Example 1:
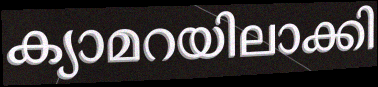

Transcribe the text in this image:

ക്യാമറയിലാക്കി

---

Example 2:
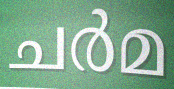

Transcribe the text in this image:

ചർമ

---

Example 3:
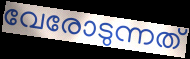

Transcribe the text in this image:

വേരോടുന്നത്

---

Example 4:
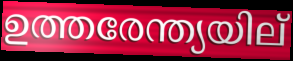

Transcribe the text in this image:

ഉത്തരേന്ത്യയില്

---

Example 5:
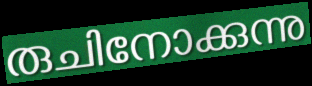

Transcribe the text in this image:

രുചിനോക്കുന്നു